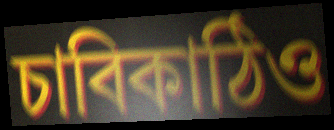
চাবিকাঠিও